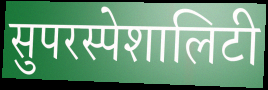
सुपरस्पेशालिटी